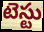
టెస్టు